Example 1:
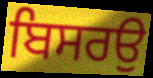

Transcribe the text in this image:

ਬਿਸਰਉ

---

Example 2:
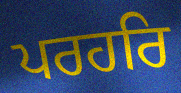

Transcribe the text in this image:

ਪਰਹਰਿ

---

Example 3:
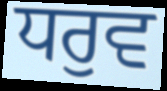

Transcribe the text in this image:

ਧਰੁਵ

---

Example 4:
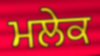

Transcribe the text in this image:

ਮਲੇਕ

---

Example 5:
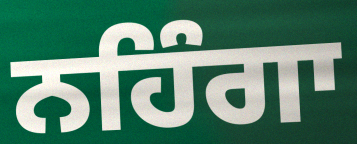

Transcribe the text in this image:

ਨਹਿੰਗਾ